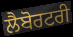
ਲੈਬੋਰਟਰੀ